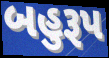
બહુરૂપ